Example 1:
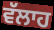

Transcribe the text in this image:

ਵੱਲਾਹ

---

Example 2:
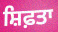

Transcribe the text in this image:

ਸ਼ਿਫ਼ਤਾ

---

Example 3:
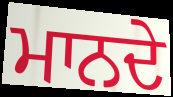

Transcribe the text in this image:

ਮਾਨਦੇ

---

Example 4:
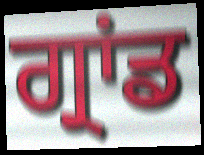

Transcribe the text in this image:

ਗ੍ਰਾਂਡ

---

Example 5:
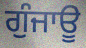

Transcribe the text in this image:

ਗੁੰਜਾਊ